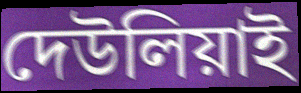
দেউলিয়াই